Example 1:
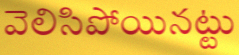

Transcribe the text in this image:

వెలిసిపోయినట్టు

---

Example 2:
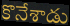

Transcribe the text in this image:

కొనేశాడు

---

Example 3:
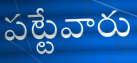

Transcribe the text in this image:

పట్టేవారు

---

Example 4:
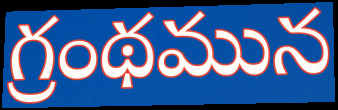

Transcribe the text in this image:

గ్రంథమున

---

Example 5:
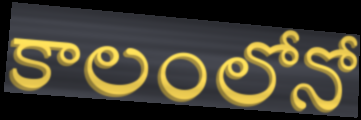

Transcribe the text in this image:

కాలంలోనో